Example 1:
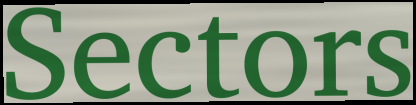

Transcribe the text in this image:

Sectors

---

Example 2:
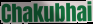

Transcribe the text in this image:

Chakubhai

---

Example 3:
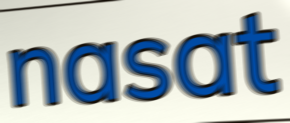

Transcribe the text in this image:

nasat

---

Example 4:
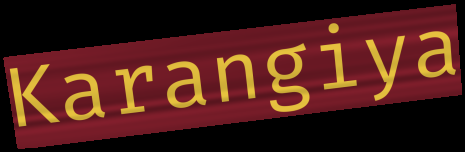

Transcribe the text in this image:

Karangiya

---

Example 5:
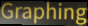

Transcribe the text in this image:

Graphing